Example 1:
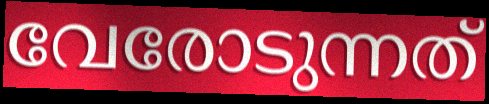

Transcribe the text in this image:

വേരോടുന്നത്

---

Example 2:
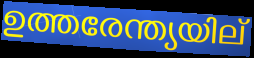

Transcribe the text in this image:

ഉത്തരേന്ത്യയില്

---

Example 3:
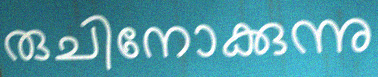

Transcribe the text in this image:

രുചിനോക്കുന്നു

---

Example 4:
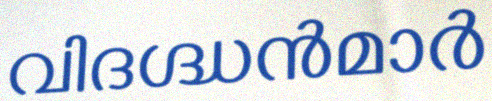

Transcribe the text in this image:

വിദഗ്ദ്ധൻമാർ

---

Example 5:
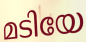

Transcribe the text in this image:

മടിയേ